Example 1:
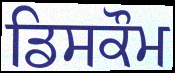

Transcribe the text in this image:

ਡਿਸਕੌਮ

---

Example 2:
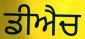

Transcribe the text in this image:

ਡੀਐਚ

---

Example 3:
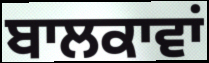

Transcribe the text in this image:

ਬਾਲਕਾਵਾਂ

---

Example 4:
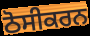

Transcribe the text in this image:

ਠੋਸੀਕਰਨ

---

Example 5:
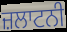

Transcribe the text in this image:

ਜ਼ਲਾਟਨੀ